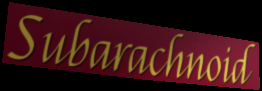
Subarachnoid